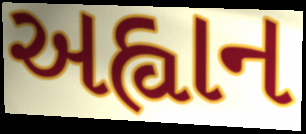
અહ્વાન